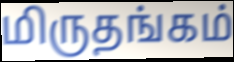
மிருதங்கம்